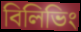
বিলিভিং